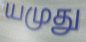
யமுது